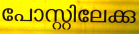
പോസ്റ്റിലേക്കു